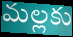
మల్లకు